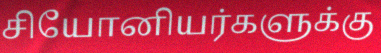
சியோனியர்களுக்கு